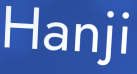
Hanji